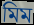
মিম